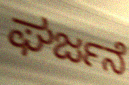
ಘರ್ಜನೆ